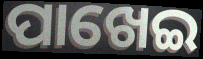
ପାଖେଇ